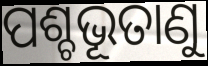
ପଶ୍ଚଭୂତାଣୁ